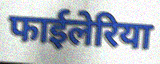
फाईलेरिया